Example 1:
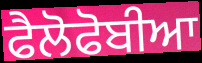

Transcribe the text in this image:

ਫੈਲੋਫੋਬੀਆ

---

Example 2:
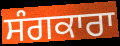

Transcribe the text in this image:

ਸੰਗਕਾਰਾ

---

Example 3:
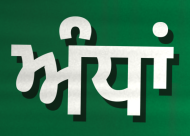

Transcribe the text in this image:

ਅੰਧਾਂ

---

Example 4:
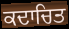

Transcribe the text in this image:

ਕਦਾਚਿਤ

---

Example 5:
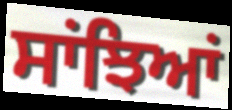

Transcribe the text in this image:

ਸਾਂਝਿਆਂ